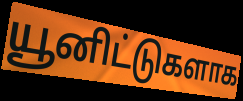
யூனிட்டுகளாக